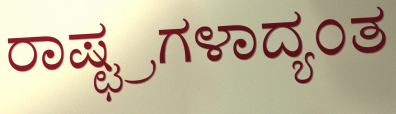
ರಾಷ್ಟ್ರಗಳಾದ್ಯಂತ